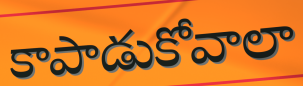
కాపాడుకోవాలా